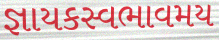
જ્ઞાયકસ્વભાવમય